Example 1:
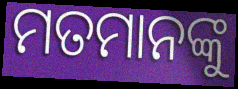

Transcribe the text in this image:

ମତମାନଙ୍କୁ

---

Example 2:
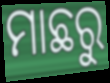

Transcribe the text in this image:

ମାଛରୁ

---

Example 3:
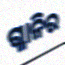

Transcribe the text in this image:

ଗ୍ଳାନିର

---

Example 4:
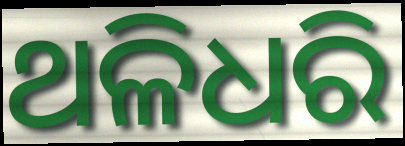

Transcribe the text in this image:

ଥଳିଧରି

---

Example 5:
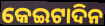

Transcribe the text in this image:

କେଇଟାଦିନ